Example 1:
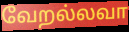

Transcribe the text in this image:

வேறல்லவா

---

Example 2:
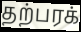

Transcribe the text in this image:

தற்பரக்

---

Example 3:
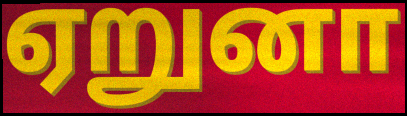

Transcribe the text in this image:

ஏறுனா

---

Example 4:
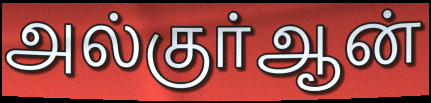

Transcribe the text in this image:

அல்குர்ஆன்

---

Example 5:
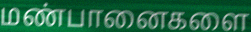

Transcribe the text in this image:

மண்பானைகளை